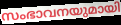
സംഭാവനയുമായി